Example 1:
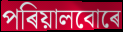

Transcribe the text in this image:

পৰিয়ালবোৰে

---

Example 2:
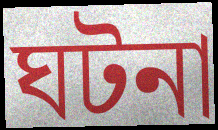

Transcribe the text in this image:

ঘটনা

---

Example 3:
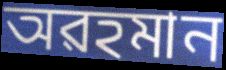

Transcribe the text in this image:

অৱহমান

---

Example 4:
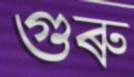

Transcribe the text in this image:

গুৰু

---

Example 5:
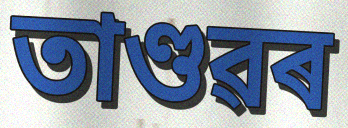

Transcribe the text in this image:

তাণ্ডৱৰ